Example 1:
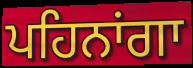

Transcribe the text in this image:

ਪਹਿਨਾਂਗਾ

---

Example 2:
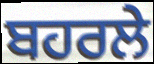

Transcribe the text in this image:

ਬਹਰਲੇ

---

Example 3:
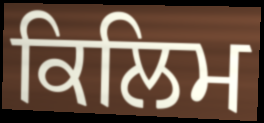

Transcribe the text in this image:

ਕਿਲਿਮ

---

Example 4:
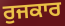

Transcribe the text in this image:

ਰੁਜਕਾਰ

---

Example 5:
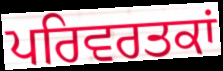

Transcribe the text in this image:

ਪਰਿਵਰਤਕਾਂ